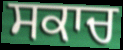
ਸਕਾਚ